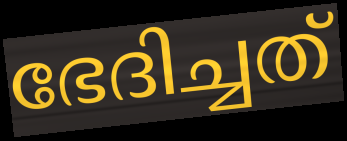
ഭേദിച്ചത്